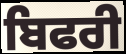
ਬਿਫਰੀ